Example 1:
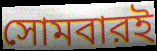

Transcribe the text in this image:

সোমবারই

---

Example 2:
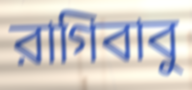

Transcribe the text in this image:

রাগিবাবু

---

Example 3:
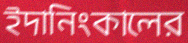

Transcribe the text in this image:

ইদানিংকালের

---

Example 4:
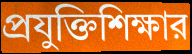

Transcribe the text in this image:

প্রযুক্তিশিক্ষার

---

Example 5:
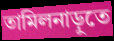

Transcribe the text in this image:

তামিলনাড়ুতে